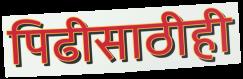
पिढीसाठीही